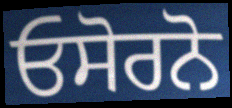
ਓਸੋਰਨੋ